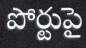
పోర్టుపై